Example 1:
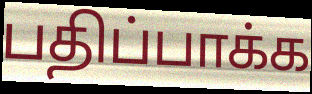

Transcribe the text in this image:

பதிப்பாக்க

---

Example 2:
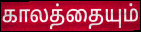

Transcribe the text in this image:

காலத்தையும்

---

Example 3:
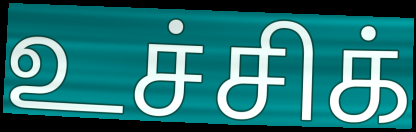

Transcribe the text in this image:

உச்சிக்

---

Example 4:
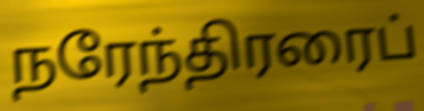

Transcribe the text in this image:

நரேந்திரரைப்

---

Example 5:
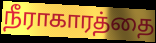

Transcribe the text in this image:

நீராகாரத்தை